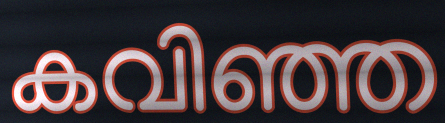
കവിഞ്ഞ